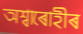
অশ্বাৰোহীৰ